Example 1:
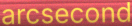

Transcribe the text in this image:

arcsecond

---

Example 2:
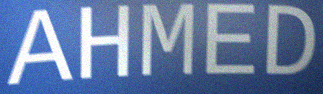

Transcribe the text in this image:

AHMED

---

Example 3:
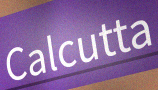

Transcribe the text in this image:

Calcutta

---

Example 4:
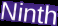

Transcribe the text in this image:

Ninth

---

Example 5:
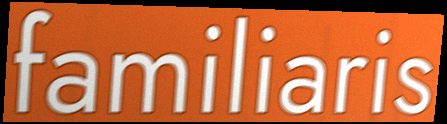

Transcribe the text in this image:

familiaris